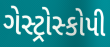
ગેસ્ટ્રોસ્કોપી